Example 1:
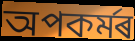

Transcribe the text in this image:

অপকৰ্মৰ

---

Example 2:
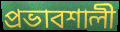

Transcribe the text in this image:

প্ৰভাবশালী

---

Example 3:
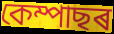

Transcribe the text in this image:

কেম্পাছৰ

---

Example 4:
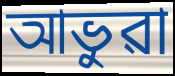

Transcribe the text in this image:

আভুৱা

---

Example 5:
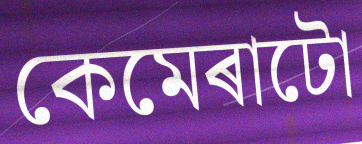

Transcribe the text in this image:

কেমেৰাটো